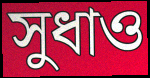
সুধাও